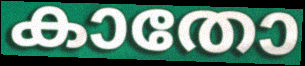
കാതോ